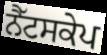
ਨੈੱਟਸਕੇਪ